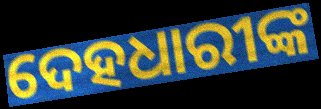
ଦେହଧାରୀଙ୍କ